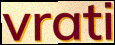
vrati